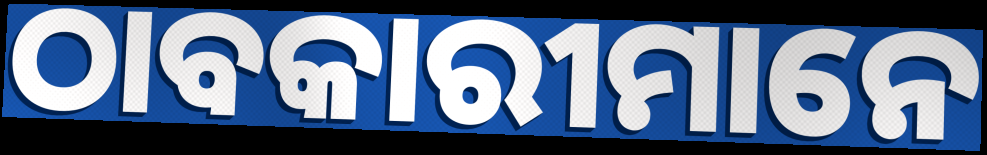
ଠାବକାରୀମାନେ